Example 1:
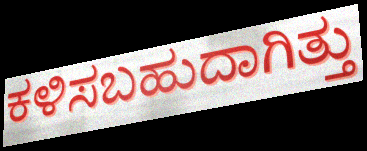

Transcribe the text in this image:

ಕಳಿಸಬಹುದಾಗಿತ್ತು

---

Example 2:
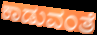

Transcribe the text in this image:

ಕಾಡುವಂತೆ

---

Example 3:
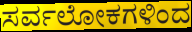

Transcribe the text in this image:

ಸರ್ವಲೋಕಗಳಿಂದ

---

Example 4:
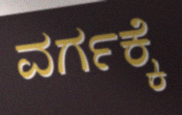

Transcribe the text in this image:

ವರ್ಗಕ್ಕೆ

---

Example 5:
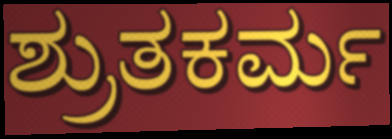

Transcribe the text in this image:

ಶ್ರುತಕರ್ಮ